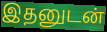
இதனுடன்